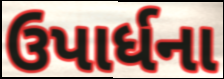
ઉપાર્ધના